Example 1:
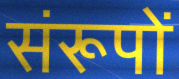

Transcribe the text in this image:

संरूपों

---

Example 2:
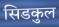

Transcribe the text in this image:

सिडकुल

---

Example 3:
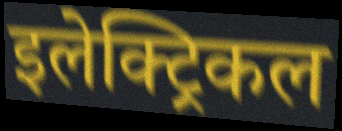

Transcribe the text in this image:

इलेक्ट्रिकल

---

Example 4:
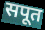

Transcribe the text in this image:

सपूत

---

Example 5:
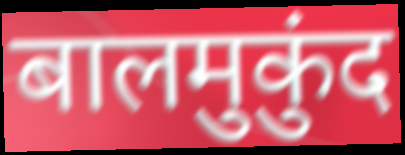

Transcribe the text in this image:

बालमुकुंद